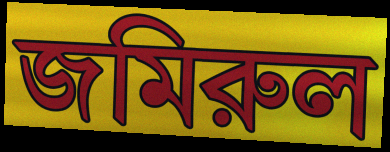
জমিরুল